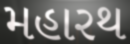
મહારથ